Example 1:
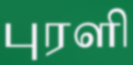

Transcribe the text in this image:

புரளி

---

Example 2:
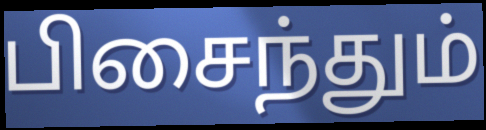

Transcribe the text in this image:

பிசைந்தும்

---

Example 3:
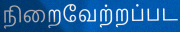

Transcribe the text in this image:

நிறைவேற்றப்பட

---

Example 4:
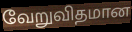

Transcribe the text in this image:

வேறுவிதமான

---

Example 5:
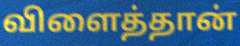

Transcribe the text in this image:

விளைத்தான்